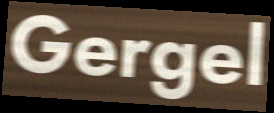
Gergel